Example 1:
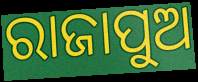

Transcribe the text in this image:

ରାଜାପୁଅ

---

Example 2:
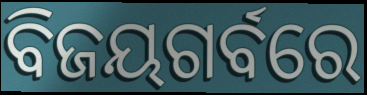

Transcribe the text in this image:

ବିଜୟଗର୍ବରେ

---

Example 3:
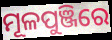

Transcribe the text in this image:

ମୂଳପୁଞ୍ଜିରେ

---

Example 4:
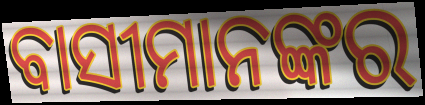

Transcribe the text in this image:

ବାସୀମାନଙ୍କର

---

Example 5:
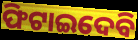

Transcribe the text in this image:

ଫିଟାଇଦେବି